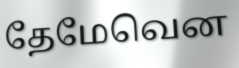
தேமேவென